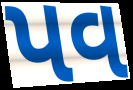
પવ